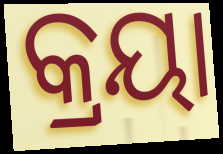
କ୍ରୟା